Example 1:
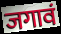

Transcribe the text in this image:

जगावं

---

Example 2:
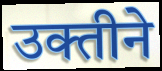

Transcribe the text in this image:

उक्तीने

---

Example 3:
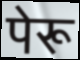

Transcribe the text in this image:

पेरू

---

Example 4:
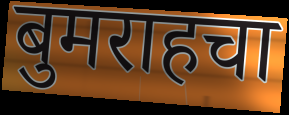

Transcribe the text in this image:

बुमराहचा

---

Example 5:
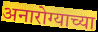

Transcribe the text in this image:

अनारोग्याच्या